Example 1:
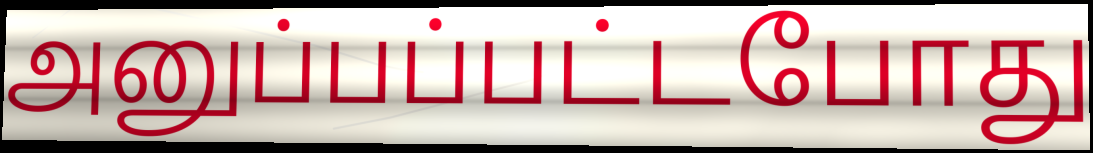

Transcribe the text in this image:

அனுப்பப்பட்டபோது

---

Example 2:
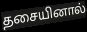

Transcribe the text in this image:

தசையினால்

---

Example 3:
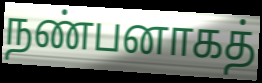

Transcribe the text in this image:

நண்பனாகத்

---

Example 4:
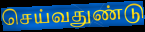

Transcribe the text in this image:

செய்வதுண்டு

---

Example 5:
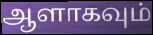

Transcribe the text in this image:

ஆளாகவும்